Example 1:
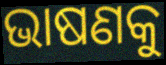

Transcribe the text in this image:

ଭାଷଣକୁ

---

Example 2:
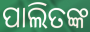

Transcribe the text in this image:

ପାଲିତଙ୍କ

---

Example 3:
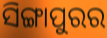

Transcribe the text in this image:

ସିଙ୍ଗାପୁରର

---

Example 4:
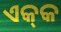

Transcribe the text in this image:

ଏକ୍‍କ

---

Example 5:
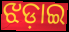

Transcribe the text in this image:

ଝଡ଼ାଇ